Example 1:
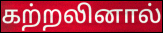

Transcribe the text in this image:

கற்றலினால்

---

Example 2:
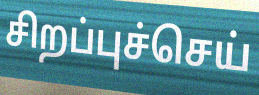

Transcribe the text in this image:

சிறப்புச்செய்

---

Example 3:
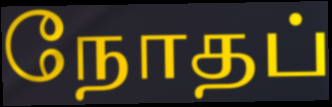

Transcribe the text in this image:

நோதப்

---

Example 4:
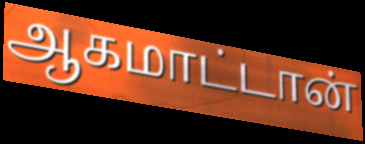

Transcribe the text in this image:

ஆகமாட்டான்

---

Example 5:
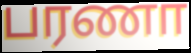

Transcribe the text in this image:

பரணா